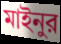
মাইনুর